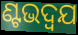
ଣ୍ଟଭଦ୍ଵଯ